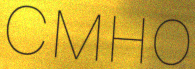
CMHO